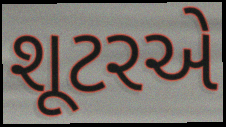
શૂટરએ